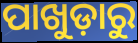
ପାଖୁଡ଼ାରୁ